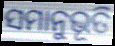
ସମାନୁଭୂତି